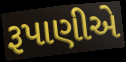
રૂપાણીએ